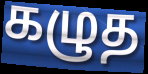
கழுத